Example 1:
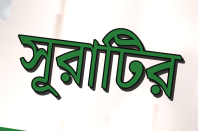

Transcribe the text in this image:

সূরাটির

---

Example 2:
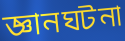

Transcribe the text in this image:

জ্ঞানঘটনা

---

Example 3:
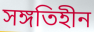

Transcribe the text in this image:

সঙ্গতিহীন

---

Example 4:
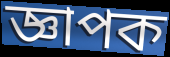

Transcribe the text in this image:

জ্ঞাপক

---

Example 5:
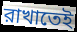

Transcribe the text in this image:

রাখাতেই